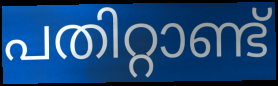
പതിറ്റാണ്ട്